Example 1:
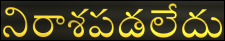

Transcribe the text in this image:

నిరాశపడలేదు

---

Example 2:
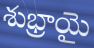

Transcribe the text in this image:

శుభ్రాయై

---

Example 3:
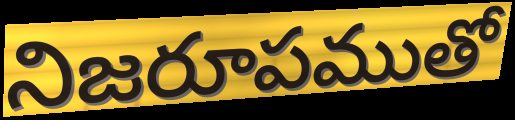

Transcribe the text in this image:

నిజరూపముతో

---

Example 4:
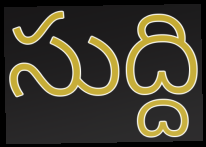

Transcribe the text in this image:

సుద్ది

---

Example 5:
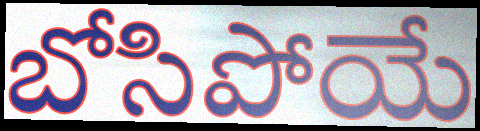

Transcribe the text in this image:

బోసిపోయే